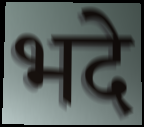
भदे